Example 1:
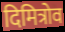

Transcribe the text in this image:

दिमित्रोव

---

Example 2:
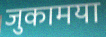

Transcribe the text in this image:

जुकामया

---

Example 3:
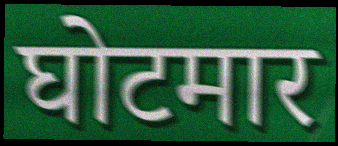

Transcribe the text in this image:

घोटमार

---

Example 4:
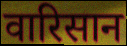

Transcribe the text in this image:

वारिसान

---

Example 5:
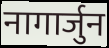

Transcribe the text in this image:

नागार्जुन